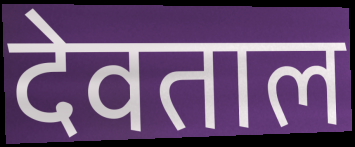
देवताल